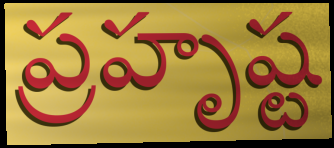
ప్రహృష్ట